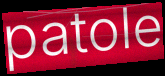
patole